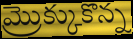
మ్రొక్కుకొన్న